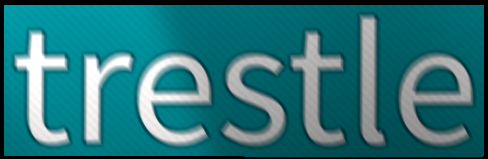
trestle